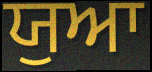
ਯੁਆ